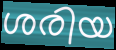
ശരിയ